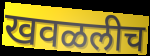
खवळलीच